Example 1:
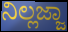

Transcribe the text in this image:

ನಿಲ್ಲಜ್ಜಾ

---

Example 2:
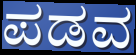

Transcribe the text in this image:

ಪಡವ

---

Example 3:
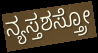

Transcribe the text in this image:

ನ್ಯಸ್ತಶಸ್ತ್ರೋ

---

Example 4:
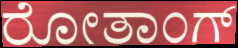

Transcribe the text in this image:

ರೋತಾಂಗ್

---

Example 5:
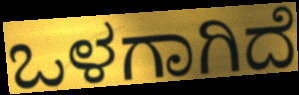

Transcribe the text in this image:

ಒಳಗಾಗಿದೆ